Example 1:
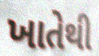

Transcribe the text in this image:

ખાતેથી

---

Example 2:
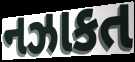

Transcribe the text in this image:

નઝાકત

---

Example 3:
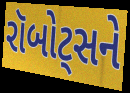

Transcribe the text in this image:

રૉબોટ્સને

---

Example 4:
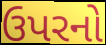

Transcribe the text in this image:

ઉપરનો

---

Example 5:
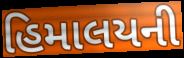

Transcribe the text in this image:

હિમાલયની